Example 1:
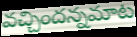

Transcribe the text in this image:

వచ్చిందన్నమాట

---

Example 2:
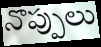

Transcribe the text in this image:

నొప్పులు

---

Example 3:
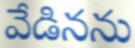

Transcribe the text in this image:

వేడినను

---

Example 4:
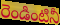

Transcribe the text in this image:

రెండింటినీ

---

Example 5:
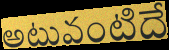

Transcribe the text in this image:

అటువంటిదే